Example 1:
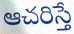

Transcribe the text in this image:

ఆచరిస్తే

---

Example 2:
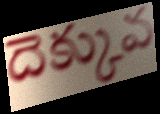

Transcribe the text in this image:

దెక్కువ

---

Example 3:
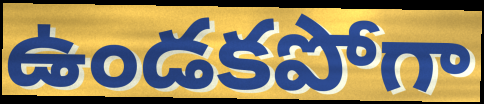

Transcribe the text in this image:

ఉండకపోగా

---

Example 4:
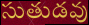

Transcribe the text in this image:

సుతుడవు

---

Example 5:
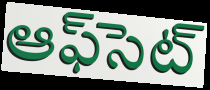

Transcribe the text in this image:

ఆఫ్‌సెట్